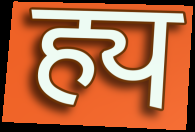
ह्य